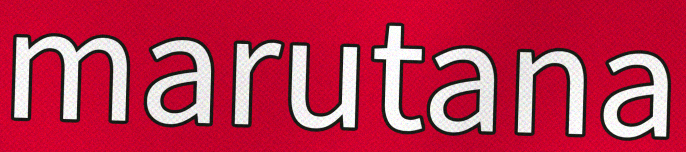
marutana